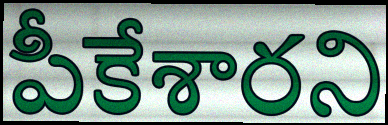
పీకేశారని